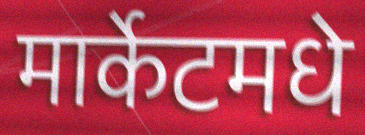
मार्केटमधे